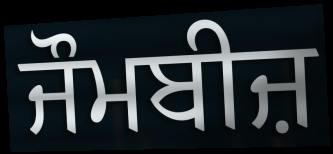
ਜੌਮਬੀਜ਼